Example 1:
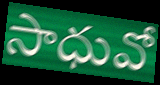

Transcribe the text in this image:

సాధువో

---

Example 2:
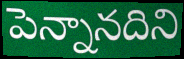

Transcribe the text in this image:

పెన్నానదిని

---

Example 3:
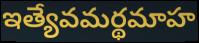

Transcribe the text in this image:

ఇత్యేవమర్థమాహ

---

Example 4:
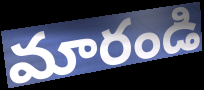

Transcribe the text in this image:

మారండి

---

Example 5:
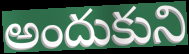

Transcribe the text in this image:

అందుకుని